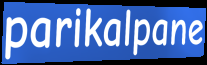
parikalpane